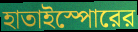
হাতাইস্পোরের